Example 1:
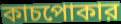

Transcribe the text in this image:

কাচপোকার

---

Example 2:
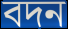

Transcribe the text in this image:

বদন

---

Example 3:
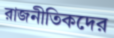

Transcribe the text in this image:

রাজনীতিকদের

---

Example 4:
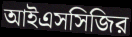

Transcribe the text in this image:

আইএসসিজির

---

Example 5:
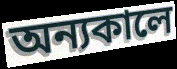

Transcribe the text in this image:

অন্যকালে